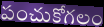
పంచుకోగలం